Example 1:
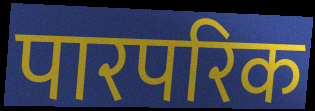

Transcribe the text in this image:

पारपरिक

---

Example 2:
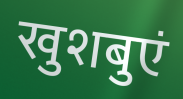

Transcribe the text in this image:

खुशबुएं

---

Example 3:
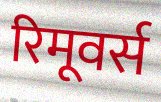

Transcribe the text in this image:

रिमूवर्स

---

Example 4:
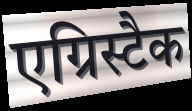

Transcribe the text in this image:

एग्रिस्टैक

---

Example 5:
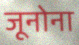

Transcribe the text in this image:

जूनोना